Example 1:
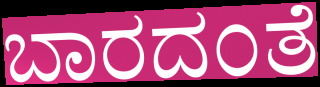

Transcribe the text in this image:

ಬಾರದಂತೆ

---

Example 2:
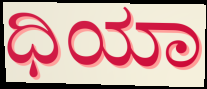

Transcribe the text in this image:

ಧಿಯಾ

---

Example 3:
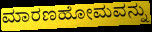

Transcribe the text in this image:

ಮಾರಣಹೋಮವನ್ನು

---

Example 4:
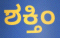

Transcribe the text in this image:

ಶಕ್ತಿಂ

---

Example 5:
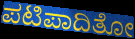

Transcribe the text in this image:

ಪಟಿಪಾದಿತೋ